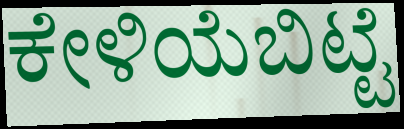
ಕೇಳಿಯೆಬಿಟ್ಟೆ